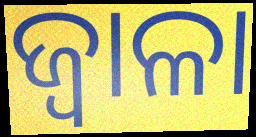
ଜ୍ୱାଳା